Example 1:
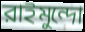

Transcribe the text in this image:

রাইমুন্দো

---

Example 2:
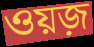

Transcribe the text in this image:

ওয়জ়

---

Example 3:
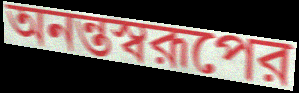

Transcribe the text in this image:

অনন্তস্বরূপের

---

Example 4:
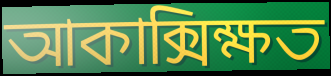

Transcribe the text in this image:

আকাক্সিক্ষত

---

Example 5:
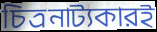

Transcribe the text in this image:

চিত্রনাট্যকারই